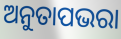
ଅନୁତାପଭରା